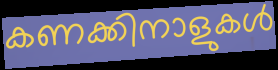
കണക്കിനാളുകൾ